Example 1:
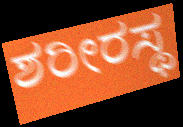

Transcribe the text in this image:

ಶರೀರಸ್ಥ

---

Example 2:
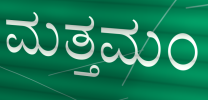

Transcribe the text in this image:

ಮತ್ತಮಂ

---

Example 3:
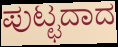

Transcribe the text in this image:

ಪುಟ್ಟದಾದ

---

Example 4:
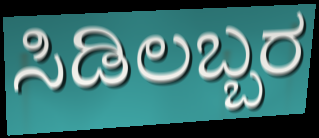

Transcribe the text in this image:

ಸಿಡಿಲಬ್ಬರ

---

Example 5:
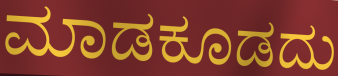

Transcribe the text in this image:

ಮಾಡಕೂಡದು